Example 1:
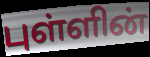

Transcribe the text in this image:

புள்ளின்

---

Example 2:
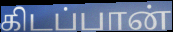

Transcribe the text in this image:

கிடப்பான்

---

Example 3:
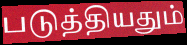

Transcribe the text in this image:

படுத்தியதும்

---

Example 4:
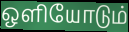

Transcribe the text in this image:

ஒளியோடும்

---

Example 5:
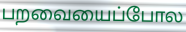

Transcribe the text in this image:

பறவையைப்போல